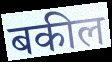
बकील